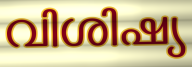
വിശിഷ്യ